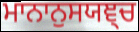
ਮਾਨਾਨੁਸਯਞ੍ਚ